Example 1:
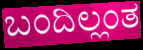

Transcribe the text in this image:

ಬಂದಿಲ್ಲಂತ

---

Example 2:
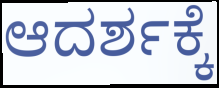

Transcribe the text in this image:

ಆದರ್ಶಕ್ಕೆ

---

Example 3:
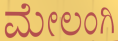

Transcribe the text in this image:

ಮೇಲಂಗಿ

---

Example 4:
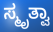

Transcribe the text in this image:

ಸ್ಮೃತ್ವಾ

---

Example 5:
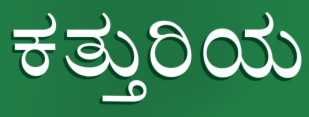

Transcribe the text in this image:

ಕತ್ತುರಿಯ